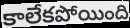
కాలేకపోయింది